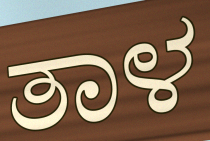
ತಾಳ